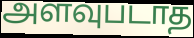
அளவுபடாத